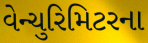
વેન્ચુરિમિટરના